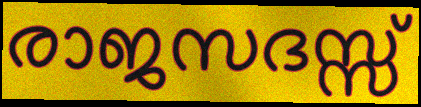
രാജസദസ്സ്